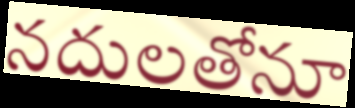
నదులతోనూ